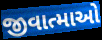
જીવાત્માઓ